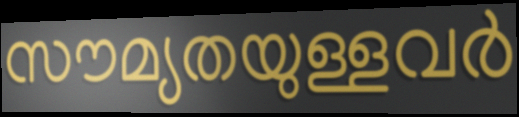
സൗമ്യതയുള്ളവർ